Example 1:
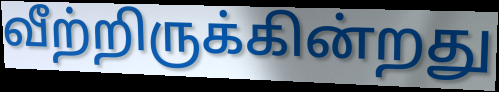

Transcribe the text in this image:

வீற்றிருக்கின்றது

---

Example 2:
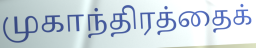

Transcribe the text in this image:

முகாந்திரத்தைக்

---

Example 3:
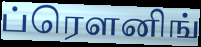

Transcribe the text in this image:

ப்ரௌனிங்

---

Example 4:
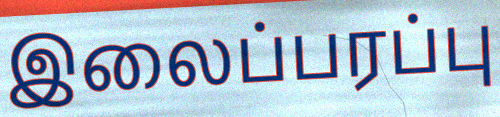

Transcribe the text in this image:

இலைப்பரப்பு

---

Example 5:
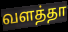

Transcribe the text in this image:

வளத்தா